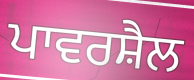
ਪਾਵਰਸ਼ੈਲ